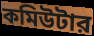
কমিউটার